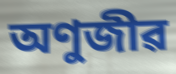
অণুজীৱ